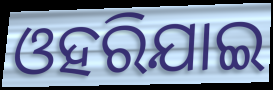
ଓହରିଯାଇ